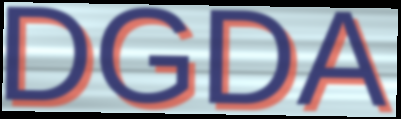
DGDA